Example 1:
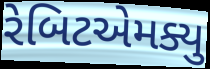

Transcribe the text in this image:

રેબિટએમક્યુ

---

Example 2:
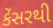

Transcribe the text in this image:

કેંસરથી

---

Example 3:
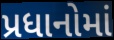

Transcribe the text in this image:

પ્રધાનોમાં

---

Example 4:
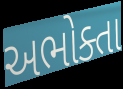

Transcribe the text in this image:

અભોક્તા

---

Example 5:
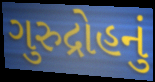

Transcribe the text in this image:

ગુરુદ્રોહનું